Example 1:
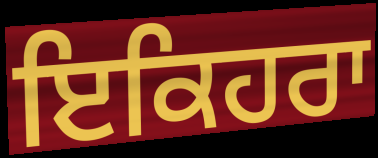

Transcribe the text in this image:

ਇਕਿਹਰਾ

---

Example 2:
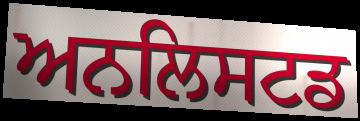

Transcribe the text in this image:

ਅਨਲਿਸਟਡ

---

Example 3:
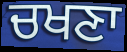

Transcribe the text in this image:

ਚਖਣਾ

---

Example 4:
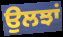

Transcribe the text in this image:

ਉਲਝਾਂ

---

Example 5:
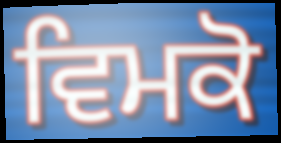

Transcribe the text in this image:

ਵਿਮਕੋ